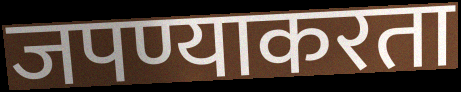
जपण्याकरता